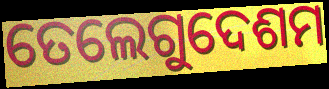
ତେଲେଗୁଦେଶମ